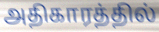
அதிகாரத்தில்